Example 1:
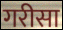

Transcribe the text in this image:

गरीसा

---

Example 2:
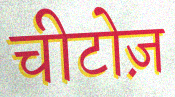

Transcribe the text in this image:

चीटोज़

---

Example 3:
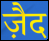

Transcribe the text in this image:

ज़ैद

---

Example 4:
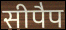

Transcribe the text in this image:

सीपैप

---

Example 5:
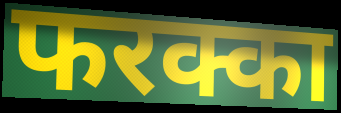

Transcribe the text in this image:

फरक्का